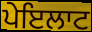
ਪੇਇਲਾਟ